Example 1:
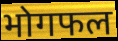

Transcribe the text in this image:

भोगफल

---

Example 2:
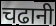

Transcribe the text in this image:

चढानी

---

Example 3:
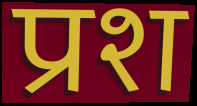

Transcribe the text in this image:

प्रश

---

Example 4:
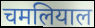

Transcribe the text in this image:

चमलियाल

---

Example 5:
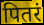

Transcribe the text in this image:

पितरं